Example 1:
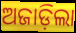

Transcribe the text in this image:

ଅଜାଡ଼ିଲା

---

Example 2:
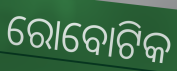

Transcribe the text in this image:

ରୋବୋଟିକ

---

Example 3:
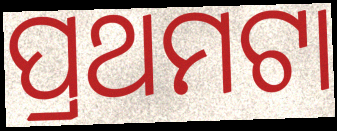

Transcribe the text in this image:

ପ୍ରଥମଟା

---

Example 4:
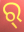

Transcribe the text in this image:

ର୍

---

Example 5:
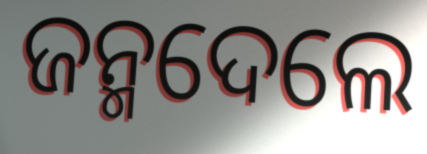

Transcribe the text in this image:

ଜନ୍ମଦେଲେ